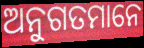
ଅନୁଗତମାନେ